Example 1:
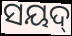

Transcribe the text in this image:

ସୟଦ୍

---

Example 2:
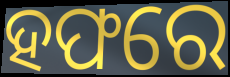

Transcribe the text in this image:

ହଫରେ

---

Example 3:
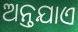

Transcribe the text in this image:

ଅନ୍ତଯାଏ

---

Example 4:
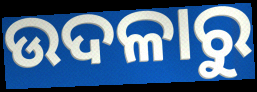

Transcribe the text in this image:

ଉଦଳାରୁ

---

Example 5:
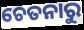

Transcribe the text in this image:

ଚେତନାରୁ